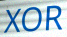
XOR